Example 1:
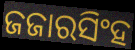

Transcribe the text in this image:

ଜଜାରସିଂହ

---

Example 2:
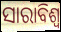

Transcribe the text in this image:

ସାରାବିଶ୍ବ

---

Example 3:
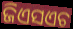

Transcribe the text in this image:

ଜିଏସଏଚ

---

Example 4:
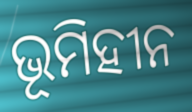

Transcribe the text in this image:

ଭୂମିହୀନ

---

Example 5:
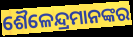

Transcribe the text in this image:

ଶୈଳେନ୍ଦ୍ରମାନଙ୍କର